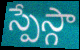
స్పేస్గా